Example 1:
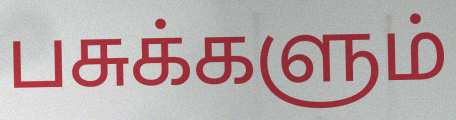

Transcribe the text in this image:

பசுக்களும்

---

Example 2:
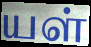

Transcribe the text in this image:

யள்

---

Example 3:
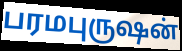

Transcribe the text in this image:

பரமபுருஷன்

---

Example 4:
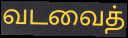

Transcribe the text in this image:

வடவைத்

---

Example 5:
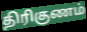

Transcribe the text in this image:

திரிகுணம்